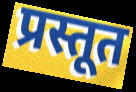
प्रस्तूत